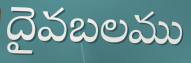
దైవబలము